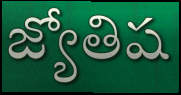
జ్యోతిష